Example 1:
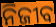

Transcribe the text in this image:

ନିଜୀବ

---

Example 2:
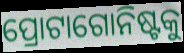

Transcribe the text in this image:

ପ୍ରୋଟାଗୋନିଷ୍ଟକୁ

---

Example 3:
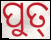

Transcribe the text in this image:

ପୁତ୍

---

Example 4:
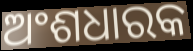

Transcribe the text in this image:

ଅଂଶଧାରକ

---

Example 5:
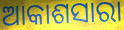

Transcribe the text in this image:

ଆକାଶସାରା